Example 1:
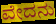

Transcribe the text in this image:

ವೇದನು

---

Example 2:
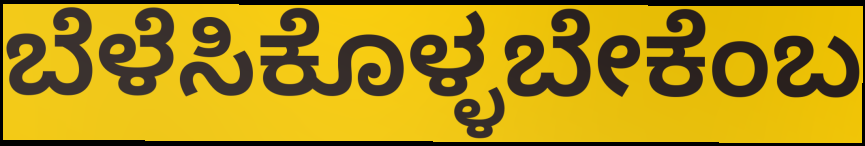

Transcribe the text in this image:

ಬೆಳೆಸಿಕೊಳ್ಳಬೇಕೆಂಬ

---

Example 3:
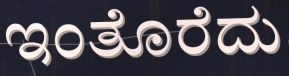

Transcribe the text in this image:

ಇಂತೊರೆದು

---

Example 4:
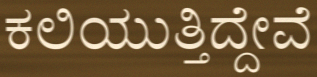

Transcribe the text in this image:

ಕಲಿಯುತ್ತಿದ್ದೇವೆ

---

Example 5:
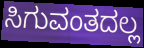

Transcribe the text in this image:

ಸಿಗುವಂತದಲ್ಲ